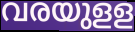
വരയുളള